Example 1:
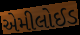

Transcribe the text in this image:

એમીલોઈડ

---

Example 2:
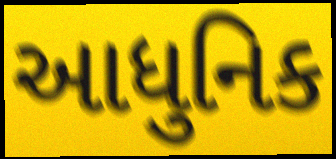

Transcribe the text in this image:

આધુનિક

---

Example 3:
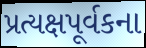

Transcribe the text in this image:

પ્રત્યક્ષપૂર્વકના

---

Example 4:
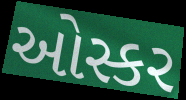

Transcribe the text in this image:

ઓસ્કર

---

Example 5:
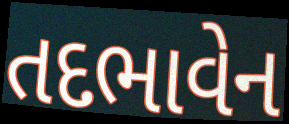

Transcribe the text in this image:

તદભાવેન